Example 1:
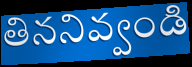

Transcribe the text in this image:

తిననివ్వండి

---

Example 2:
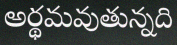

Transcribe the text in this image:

అర్థమవుతున్నది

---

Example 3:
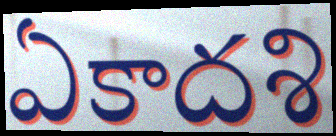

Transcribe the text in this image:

ఏకాదశి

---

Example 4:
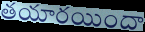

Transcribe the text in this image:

తయారయిందా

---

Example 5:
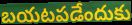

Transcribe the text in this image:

బయటపడేందుకు